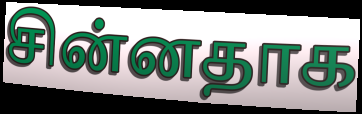
சின்னதாக